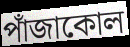
পাঁজাকোল